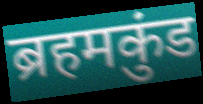
ब्रहमकुंड